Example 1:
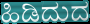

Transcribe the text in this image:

ಹಿಡಿದುದ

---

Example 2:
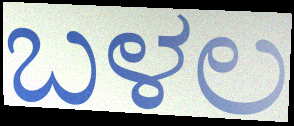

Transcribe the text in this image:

ಬಳಲ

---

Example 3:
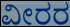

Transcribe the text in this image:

ವೀರರ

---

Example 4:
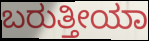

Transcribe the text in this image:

ಬರುತ್ತೀಯಾ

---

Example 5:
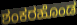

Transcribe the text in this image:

ಶಂಕರಹೊಂಡ